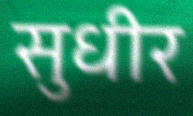
सुधीर